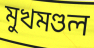
মুখমণ্ডল